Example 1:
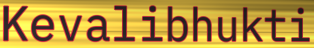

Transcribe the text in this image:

Kevalibhukti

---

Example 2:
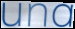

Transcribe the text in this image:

una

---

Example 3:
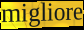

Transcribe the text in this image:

migliore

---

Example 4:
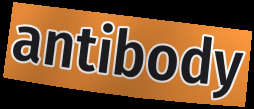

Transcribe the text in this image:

antibody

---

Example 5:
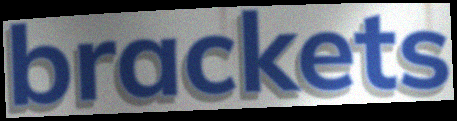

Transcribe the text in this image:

brackets